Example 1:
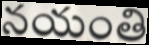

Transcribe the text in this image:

నయంతి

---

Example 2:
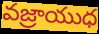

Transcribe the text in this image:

వజ్రాయుధ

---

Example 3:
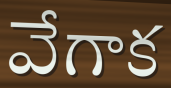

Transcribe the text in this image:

వేగాక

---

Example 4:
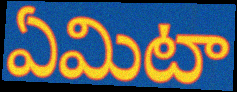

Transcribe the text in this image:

ఏమిటా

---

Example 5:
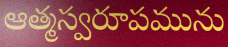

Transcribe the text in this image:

ఆత్మస్వరూపమును